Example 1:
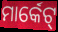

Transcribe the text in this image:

ମାର୍କେଟ୍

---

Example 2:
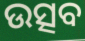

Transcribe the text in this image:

ଉତ୍ସବ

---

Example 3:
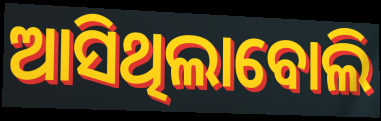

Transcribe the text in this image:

ଆସିଥିଲାବୋଲି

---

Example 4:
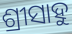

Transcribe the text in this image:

ଶ୍ରୀସାହୁ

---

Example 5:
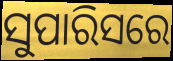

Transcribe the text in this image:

ସୁପାରିସରେ